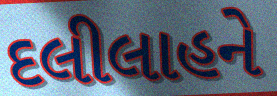
દલીલાહને